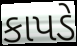
કાપડે